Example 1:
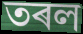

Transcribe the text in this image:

তৰল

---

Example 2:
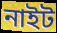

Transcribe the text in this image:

নাইট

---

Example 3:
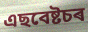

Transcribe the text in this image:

এছবেষ্টচৰ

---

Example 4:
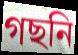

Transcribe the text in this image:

গছনি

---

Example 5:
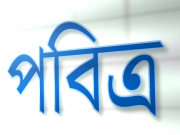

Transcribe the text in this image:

পবিত্ৰ